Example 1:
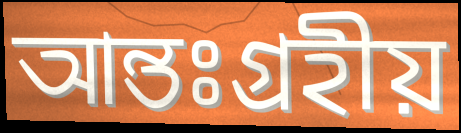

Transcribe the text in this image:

আন্তঃগ্রহীয়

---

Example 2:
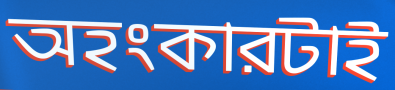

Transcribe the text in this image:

অহংকারটাই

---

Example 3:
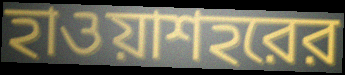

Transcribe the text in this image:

হাওয়াশহরের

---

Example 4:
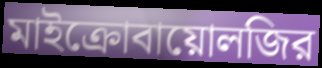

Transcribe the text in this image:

মাইক্রোবায়োলজির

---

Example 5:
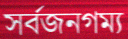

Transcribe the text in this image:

সর্বজনগম্য